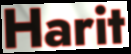
Harit